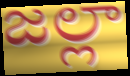
జల్లా